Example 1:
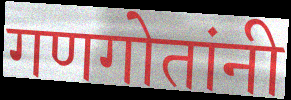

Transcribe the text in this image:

गणगोतांनी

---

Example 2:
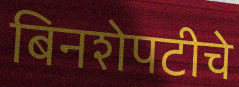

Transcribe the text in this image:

बिनशेपटीचे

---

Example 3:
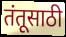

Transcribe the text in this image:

तंतूसाठी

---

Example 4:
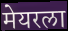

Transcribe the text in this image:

मेयरला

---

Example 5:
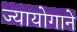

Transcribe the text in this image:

ज्यायोगाने